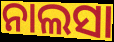
ନାଲସା